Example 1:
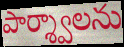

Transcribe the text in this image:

పార్శ్వాలను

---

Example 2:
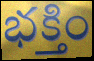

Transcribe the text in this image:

భక్తిం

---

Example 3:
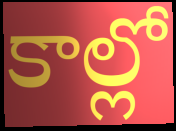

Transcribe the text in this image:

కాల్లో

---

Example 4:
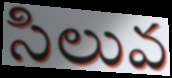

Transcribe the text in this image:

సిలువ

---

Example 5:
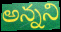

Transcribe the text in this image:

అన్నని